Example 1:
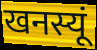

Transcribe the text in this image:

खनस्यूं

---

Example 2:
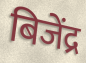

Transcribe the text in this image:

बिजेंद्र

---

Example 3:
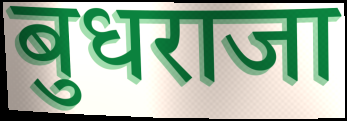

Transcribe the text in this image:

बुधराजा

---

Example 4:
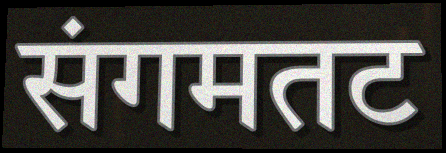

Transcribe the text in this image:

संगमतट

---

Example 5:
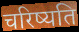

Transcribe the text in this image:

चरिष्यति